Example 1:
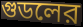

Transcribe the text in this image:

গুডলের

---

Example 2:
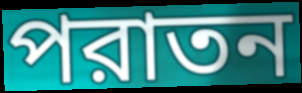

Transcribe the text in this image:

পরাতন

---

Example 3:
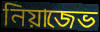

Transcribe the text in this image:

নিয়াজেভ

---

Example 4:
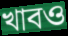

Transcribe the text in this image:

খাবও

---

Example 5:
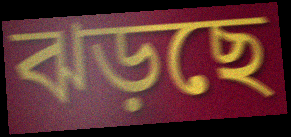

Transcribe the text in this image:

ঝড়ছে